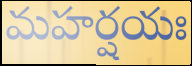
మహర్షయః